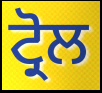
ਟ੍ਰੋਲ